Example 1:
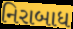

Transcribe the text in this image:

નિરાબાધ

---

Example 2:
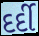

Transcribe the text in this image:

દર્દી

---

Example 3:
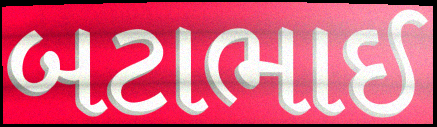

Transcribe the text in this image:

બટાભાઈ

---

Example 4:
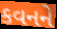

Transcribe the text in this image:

કવનને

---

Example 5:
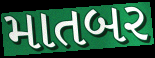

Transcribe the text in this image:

માતબર